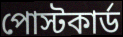
পোস্টকার্ড